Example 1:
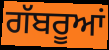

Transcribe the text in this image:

ਗੱਬਰੂਆਂ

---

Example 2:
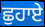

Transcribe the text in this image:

ਛੁਹਾਏ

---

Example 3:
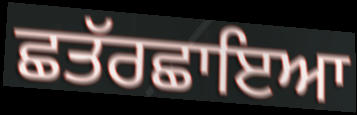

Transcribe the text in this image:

ਛਤੱਰਛਾਇਆ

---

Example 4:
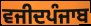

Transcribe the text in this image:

ਵਜੀਦਪੰਜਾਬ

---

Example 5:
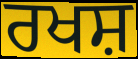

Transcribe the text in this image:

ਰਖਸ਼